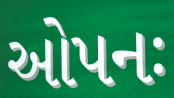
ઓપનઃ